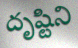
దృష్టిని